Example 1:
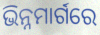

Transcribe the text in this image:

ଭିନ୍ନମାର୍ଗରେ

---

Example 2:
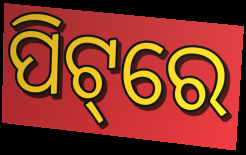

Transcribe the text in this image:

ପିଟ୍‌ରେ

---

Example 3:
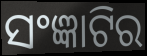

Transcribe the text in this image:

ସଂଜ୍ଞାଟିର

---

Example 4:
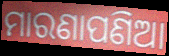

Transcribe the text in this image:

ମାରଣାପଣିଆ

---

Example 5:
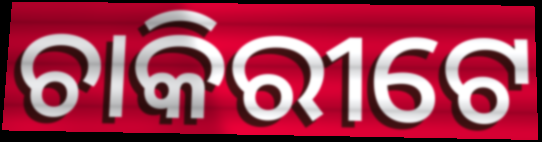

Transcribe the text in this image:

ଚାକିରୀଟେ